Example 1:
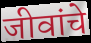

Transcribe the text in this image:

जीवांचे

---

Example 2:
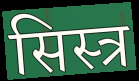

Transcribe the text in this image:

सिस्त्र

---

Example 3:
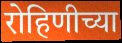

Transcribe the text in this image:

रोहिणीच्या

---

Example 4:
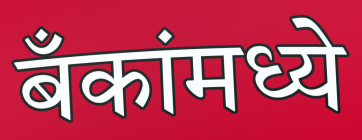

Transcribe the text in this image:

बँकांमध्ये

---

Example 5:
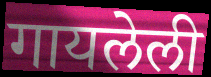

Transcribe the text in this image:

गायलेली